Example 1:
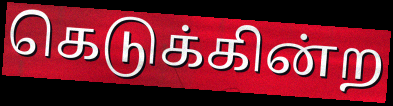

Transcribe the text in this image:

கெடுக்கின்ற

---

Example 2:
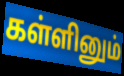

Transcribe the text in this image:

கள்ளினும்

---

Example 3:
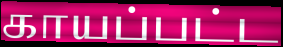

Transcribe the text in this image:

காயப்பட்ட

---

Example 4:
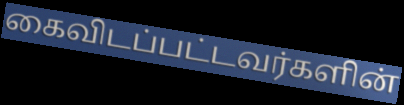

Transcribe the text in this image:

கைவிடப்பட்டவர்களின்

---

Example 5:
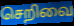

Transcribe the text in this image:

செறிவை